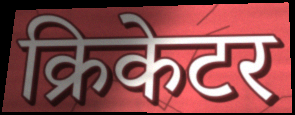
क्रिकेटर